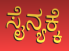
ಸೈನ್ಯಕ್ಕೆ